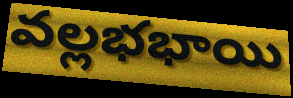
వల్లభభాయి